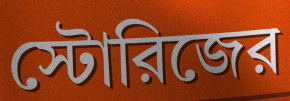
স্টোরিজের